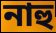
নাহু